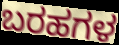
ಬರಹಗಳ